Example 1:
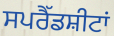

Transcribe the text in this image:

ਸਪਰੈੱਡਸ਼ੀਟਾਂ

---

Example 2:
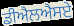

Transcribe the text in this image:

ਡੀਐਲਐਸਏ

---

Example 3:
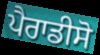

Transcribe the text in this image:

ਪੈਰਾਡੀਸੋ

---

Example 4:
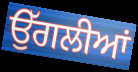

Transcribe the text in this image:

ਉੱਗਲੀਆਂ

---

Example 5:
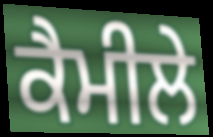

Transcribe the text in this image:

ਕੈਮੀਲੇ